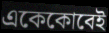
একেকোবেই